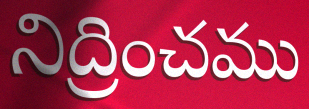
నిద్రించము